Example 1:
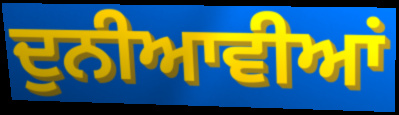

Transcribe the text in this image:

ਦੁਨੀਆਵੀਆਂ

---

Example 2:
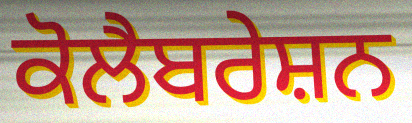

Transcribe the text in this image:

ਕੋਲੈਬਰੇਸ਼ਨ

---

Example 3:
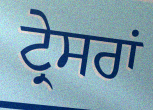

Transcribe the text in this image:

ਟ੍ਰੇਸਰਾਂ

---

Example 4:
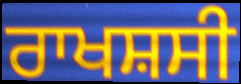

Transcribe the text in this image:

ਰਾਖਸ਼ਸੀ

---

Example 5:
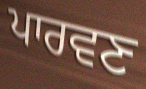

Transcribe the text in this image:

ਪਾਰਵਣ